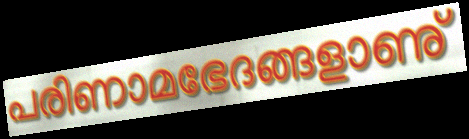
പരിണാമഭേദങ്ങളാണു്